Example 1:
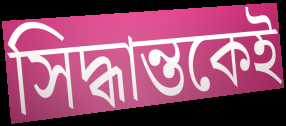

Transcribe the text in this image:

সিদ্ধান্তকেই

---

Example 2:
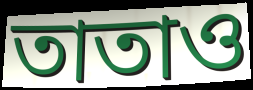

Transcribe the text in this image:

তাতাও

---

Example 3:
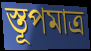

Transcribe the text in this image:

স্তূপমাত্র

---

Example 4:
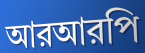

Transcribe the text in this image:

আরআরপি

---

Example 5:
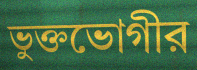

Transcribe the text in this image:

ভুক্তভোগীর